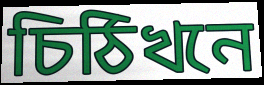
চিঠিখনে